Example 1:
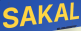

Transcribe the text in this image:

SAKAL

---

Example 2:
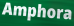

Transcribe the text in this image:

Amphora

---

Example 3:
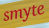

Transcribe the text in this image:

smyte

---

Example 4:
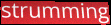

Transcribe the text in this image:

strumming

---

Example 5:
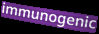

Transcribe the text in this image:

immunogenic